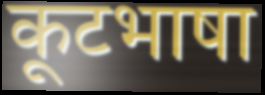
कूटभाषा